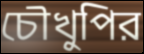
চৌখুপির